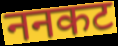
ननकट